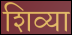
शिव्या